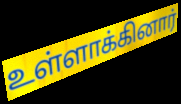
உள்ளாக்கினார்